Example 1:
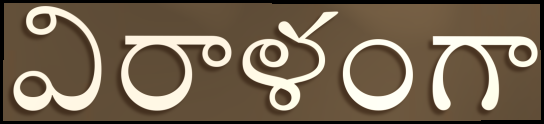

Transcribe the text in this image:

విరాళంగా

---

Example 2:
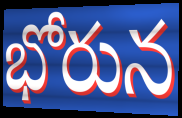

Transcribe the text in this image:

భోరున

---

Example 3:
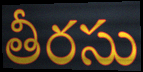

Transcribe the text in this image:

తీరసు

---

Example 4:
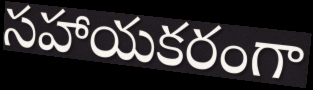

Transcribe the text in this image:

సహాయకరంగా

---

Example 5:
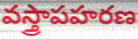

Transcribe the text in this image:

వస్త్రాపహరణ